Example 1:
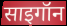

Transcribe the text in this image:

साइगॉन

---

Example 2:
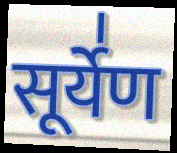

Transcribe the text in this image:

सूर्ये॑ण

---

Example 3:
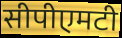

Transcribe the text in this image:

सीपीएमटी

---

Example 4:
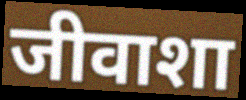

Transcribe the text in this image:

जीवाशा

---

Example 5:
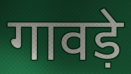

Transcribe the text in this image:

गावड़े